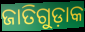
ଜାତିଗୁଡ଼ାକ